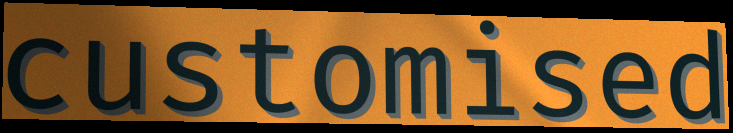
customised